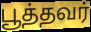
பூத்தவர்